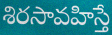
శిరసావహిస్తే